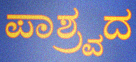
ಪಾಶ್ರ್ವದ